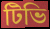
টিভি